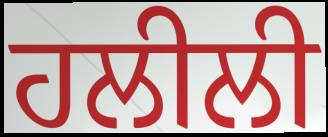
ਹਲੀਲੀ